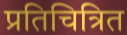
प्रतिचित्रित